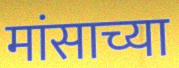
मांसाच्या